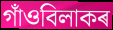
গাঁওবিলাকৰ